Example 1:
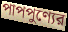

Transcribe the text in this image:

পাপপুণ্যের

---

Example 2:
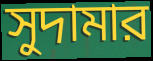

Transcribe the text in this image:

সুদামার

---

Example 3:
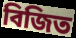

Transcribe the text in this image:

বিজিত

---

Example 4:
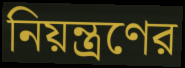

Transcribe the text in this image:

নিয়ন্ত্রণের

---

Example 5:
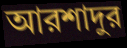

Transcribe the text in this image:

আরশাদুর